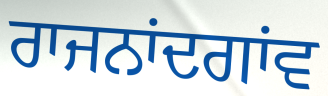
ਰਾਜਨਾਂਦਗਾਂਵ